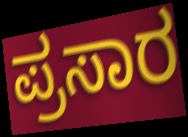
ಪ್ರಸಾರ